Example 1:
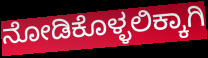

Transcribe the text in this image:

ನೋಡಿಕೊಳ್ಳಲಿಕ್ಕಾಗಿ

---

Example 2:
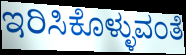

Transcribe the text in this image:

ಇರಿಸಿಕೊಳ್ಳುವಂತೆ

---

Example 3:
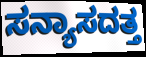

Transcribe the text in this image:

ಸನ್ಯಾಸದತ್ತ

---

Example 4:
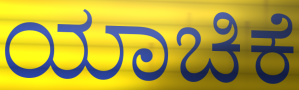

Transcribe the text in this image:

ಯಾಚಿಕೆ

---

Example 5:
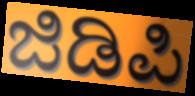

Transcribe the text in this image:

ಜಿಡಿಪಿ